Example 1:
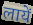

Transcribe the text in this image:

लायें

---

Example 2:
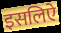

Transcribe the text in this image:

इसलिऐ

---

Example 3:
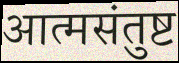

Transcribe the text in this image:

आत्मसंतुष्ट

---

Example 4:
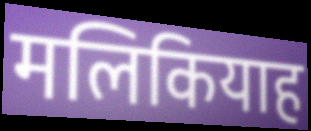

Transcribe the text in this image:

मलिकियाह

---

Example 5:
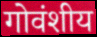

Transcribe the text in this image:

गोवंशीय